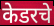
केडरचे